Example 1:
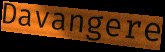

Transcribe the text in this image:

Davangere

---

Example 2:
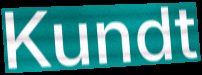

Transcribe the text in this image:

Kundt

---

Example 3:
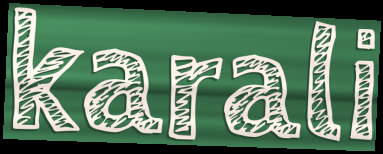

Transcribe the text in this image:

karali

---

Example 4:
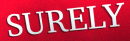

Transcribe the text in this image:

SURELY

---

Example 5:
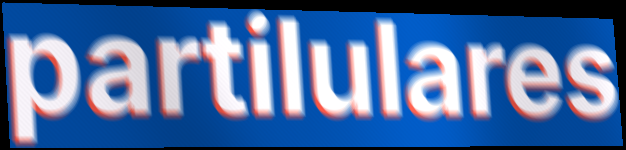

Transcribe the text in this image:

partilulares